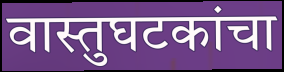
वास्तुघटकांचा